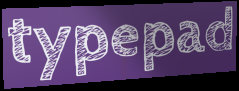
typepad